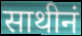
साथीनं